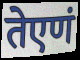
तेएणं